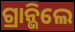
ଗ୍ରାନ୍ଭିଲେ